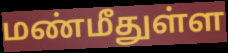
மண்மீதுள்ள